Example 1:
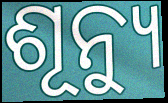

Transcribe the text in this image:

ଶୂନ୍ୟୁ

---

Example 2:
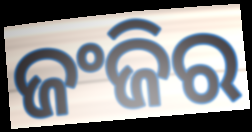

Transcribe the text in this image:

ଜଂଜିର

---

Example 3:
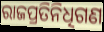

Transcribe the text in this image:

ରାଜପ୍ରତିନିଧିଗଣ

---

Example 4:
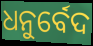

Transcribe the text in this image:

ଧନୁର୍ବେଦ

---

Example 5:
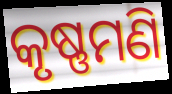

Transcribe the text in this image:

କୃଷ୍ଣମଣି